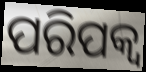
ପରିପକ୍ଵ